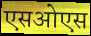
एसओएस